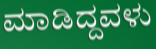
ಮಾಡಿದ್ದವಳು